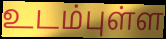
உடம்புள்ள